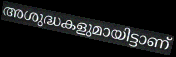
അശുദ്ധകളുമായിട്ടാണ്